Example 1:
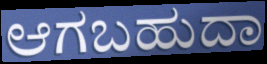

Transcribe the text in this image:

ಆಗಬಹುದಾ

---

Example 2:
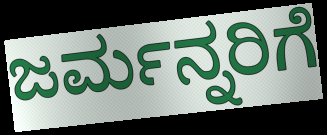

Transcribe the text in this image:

ಜರ್ಮನ್ನರಿಗೆ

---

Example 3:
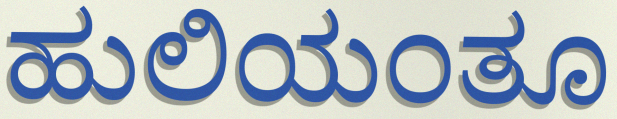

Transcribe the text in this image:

ಹುಲಿಯಂತೂ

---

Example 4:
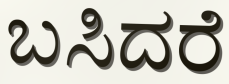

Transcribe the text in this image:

ಬಸಿದರೆ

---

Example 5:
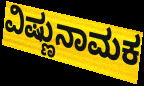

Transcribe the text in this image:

ವಿಷ್ಣುನಾಮಕ